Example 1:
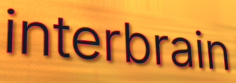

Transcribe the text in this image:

interbrain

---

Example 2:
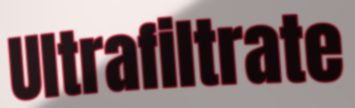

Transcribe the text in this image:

Ultrafiltrate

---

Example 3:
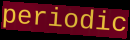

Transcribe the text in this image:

periodic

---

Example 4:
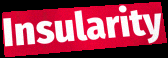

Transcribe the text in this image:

Insularity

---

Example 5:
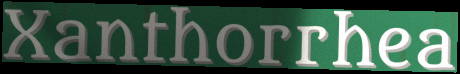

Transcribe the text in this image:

Xanthorrhea